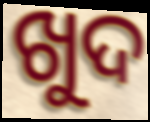
ଖୁଦ